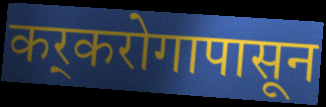
कर्करोगापासून